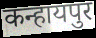
कन्हायपुर